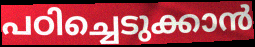
പഠിച്ചെടുക്കാൻ